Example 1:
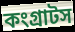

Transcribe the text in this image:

কংগ্রাটস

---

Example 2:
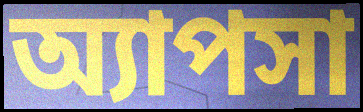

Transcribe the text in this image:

অ্যাপসা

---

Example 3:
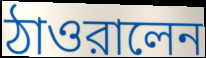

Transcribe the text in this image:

ঠাওরালেন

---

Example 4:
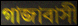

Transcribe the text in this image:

গাজাবাসী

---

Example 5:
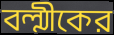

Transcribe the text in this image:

বল্মীকের